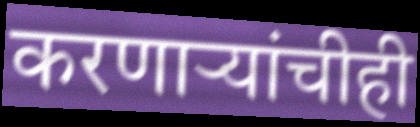
करणाऱ्यांचीही